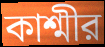
কাশ্মীর